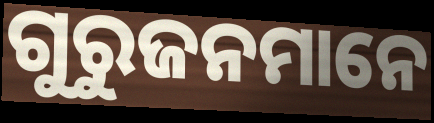
ଗୁରୁଜନମାନେ